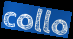
collo